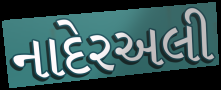
નાદેરઅલી